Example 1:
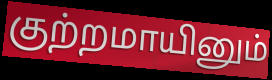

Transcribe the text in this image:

குற்றமாயினும்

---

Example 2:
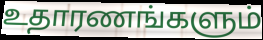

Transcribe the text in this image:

உதாரணங்களும்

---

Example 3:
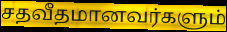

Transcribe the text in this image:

சதவீதமானவர்களும்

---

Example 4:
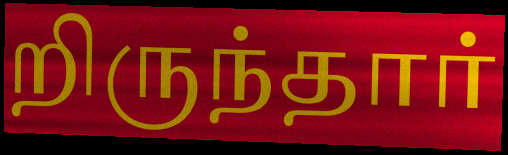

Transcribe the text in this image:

றிருந்தார்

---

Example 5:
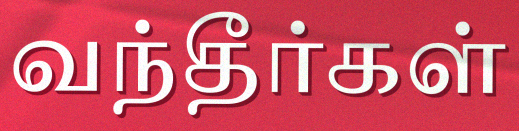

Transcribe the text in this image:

வந்தீர்கள்